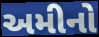
અમીનો